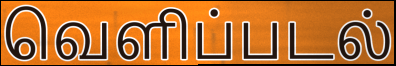
வெளிப்படல்